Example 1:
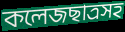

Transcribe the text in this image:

কলেজছাত্রসহ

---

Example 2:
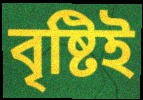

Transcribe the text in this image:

বৃষ্টিই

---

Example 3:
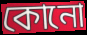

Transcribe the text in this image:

কোনো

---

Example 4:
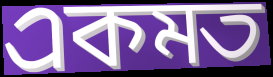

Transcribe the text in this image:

একমত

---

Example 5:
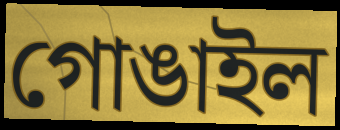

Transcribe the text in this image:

গোঙাইল